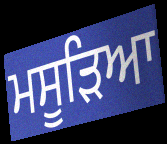
ਮਸੂੜਿਆ